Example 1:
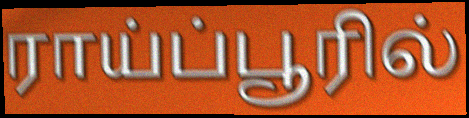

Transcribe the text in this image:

ராய்ப்பூரில்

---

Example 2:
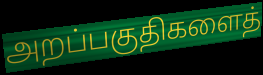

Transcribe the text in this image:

அறப்பகுதிகளைத்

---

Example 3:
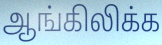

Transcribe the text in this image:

ஆங்கிலிக்க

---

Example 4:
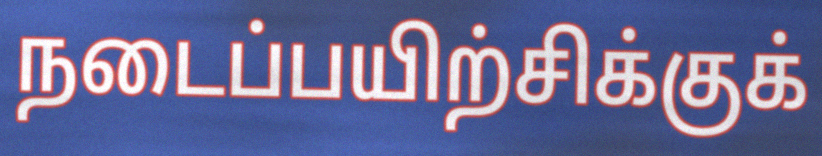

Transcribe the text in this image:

நடைப்பயிற்சிக்குக்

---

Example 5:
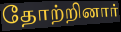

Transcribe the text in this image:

தோற்றினார்